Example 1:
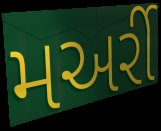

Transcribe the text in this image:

મઅર્રી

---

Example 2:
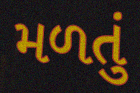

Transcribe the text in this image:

મળતું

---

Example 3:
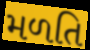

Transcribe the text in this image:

મળતિ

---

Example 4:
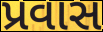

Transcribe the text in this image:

પ્રવાસ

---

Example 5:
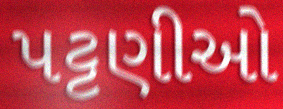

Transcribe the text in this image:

પટ્ટણીઓ